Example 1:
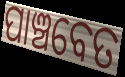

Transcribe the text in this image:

ପାଞ୍ଚବେତ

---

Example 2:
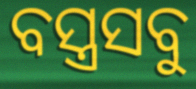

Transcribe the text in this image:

ବସ୍ତ୍ରସବୁ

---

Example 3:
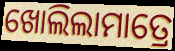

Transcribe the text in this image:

ଖୋଲିଲାମାତ୍ରେ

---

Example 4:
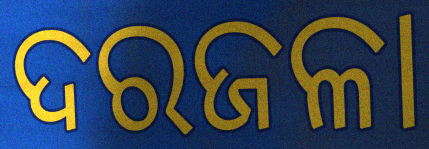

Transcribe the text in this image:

ଦରଜଳା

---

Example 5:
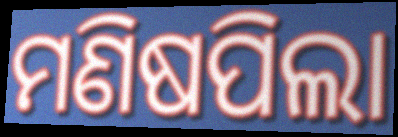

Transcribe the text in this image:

ମଣିଷପିଲା